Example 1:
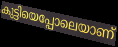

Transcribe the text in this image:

കുട്ടിയെപ്പോലെയാണ്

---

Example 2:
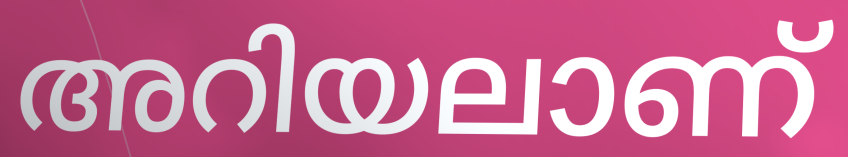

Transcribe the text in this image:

അറിയലാണ്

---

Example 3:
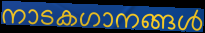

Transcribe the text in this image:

നാടകഗാനങ്ങൾ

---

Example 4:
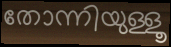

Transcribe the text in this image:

തോന്നിയുള്ളൂ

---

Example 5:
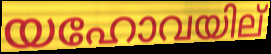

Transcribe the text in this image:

യഹോവയില്